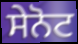
ਸੇਨੋਟ